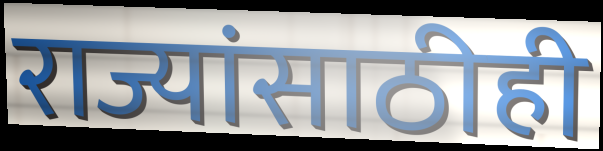
राज्यांसाठीही